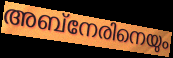
അബ്നേരിനെയും